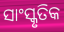
ସାଂସ୍କୃତିକ